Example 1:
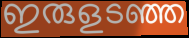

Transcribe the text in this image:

ഇരുളടഞ്ഞ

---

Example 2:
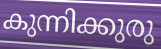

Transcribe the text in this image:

കുന്നിക്കുരു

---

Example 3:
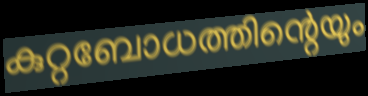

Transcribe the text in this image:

കുറ്റബോധത്തിന്റെയും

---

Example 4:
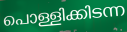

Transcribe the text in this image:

പൊള്ളിക്കിടന്ന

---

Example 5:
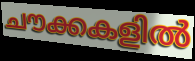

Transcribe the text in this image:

ചൗക്കകളിൽ